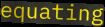
equating